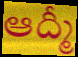
ఆద్మీ